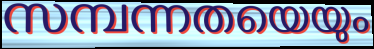
സമ്പന്നതയെയും